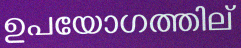
ഉപയോഗത്തില്